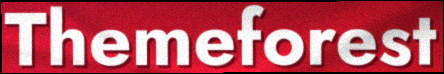
Themeforest